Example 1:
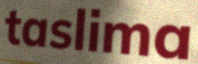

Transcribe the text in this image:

taslima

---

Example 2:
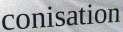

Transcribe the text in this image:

conisation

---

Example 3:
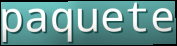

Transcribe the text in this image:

paquete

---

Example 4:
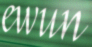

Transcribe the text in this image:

ewun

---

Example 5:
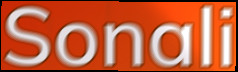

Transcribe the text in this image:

Sonali